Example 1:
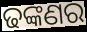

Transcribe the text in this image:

ଢଙ୍କଣର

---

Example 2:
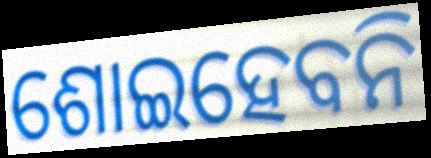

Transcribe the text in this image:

ଶୋଇହେବନି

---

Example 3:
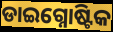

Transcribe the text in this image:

ଡାଇଗ୍ନୋଷ୍ଟିକ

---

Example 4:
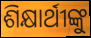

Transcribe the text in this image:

ଶିକ୍ଷାର୍ଥୀଙ୍କୁ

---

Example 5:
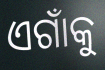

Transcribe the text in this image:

ଏଗାଁକୁ